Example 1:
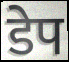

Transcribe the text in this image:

डेप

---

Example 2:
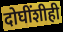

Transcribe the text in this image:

दोघींशीही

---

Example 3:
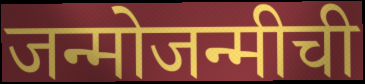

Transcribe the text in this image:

जन्मोजन्मीची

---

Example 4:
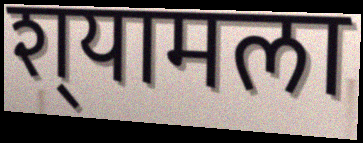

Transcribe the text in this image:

श्यामला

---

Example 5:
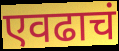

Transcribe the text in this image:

एवढाचं